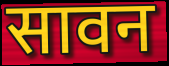
सावन